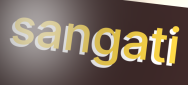
sangati